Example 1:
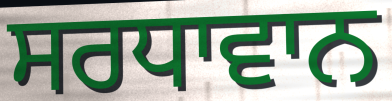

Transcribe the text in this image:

ਸਰਧਾਵਾਨ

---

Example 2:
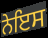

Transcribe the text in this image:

ਨੇਇਸ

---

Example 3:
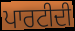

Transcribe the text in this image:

ਪਾਰਟੀਦੀ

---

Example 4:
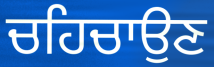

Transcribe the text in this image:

ਚਹਿਚਾਉਣ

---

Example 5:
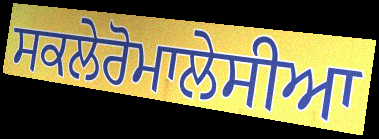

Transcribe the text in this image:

ਸਕਲੇਰੋਮਾਲੇਸੀਆ